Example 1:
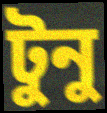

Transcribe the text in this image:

টুনু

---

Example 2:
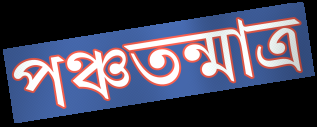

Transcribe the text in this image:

পঞ্চতন্মাত্র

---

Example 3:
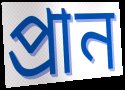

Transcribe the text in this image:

প্রান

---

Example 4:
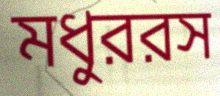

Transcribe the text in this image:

মধুররস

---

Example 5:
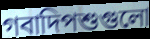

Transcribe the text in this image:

গবাদিপশুগুলো